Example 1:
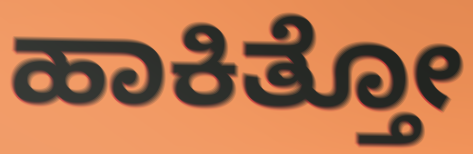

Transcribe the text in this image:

ಹಾಕಿತ್ತೋ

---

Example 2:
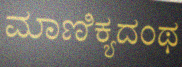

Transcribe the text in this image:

ಮಾಣಿಕ್ಯದಂಥ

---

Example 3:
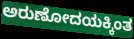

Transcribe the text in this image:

ಅರುಣೋದಯಕ್ಕಿಂತ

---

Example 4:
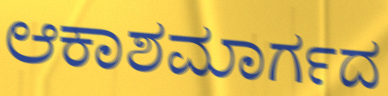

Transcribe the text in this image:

ಆಕಾಶಮಾರ್ಗದ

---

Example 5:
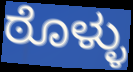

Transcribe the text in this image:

ಠೊಳ್ಳು